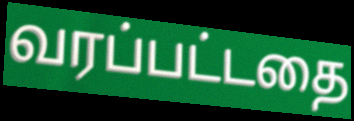
வரப்பட்டதை